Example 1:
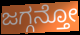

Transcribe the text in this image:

ಜಗ್ಗನ್ತೋ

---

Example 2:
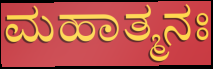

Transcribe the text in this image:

ಮಹಾತ್ಮನಃ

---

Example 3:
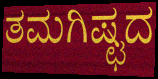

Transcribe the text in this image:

ತಮಗಿಷ್ಟದ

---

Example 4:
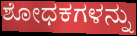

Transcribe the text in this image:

ಶೋಧಕಗಳನ್ನು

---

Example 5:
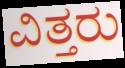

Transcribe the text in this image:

ವಿತ್ತರು